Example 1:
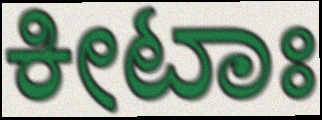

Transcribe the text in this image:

ಕೀಟಾಃ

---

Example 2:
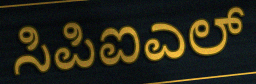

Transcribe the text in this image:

ಸಿಪಿಐಎಲ್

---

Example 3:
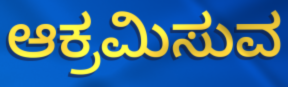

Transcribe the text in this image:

ಆಕ್ರಮಿಸುವ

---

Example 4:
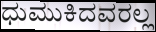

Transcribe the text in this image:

ಧುಮುಕಿದವರಲ್ಲ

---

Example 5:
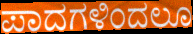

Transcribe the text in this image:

ಪಾದಗಳಿಂದಲೂ